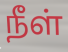
நீள்